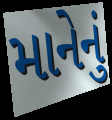
માનેનું